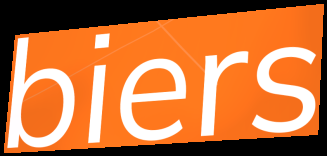
biers